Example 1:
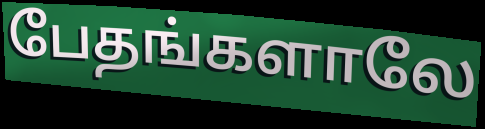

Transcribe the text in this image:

பேதங்களாலே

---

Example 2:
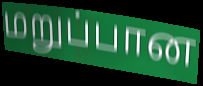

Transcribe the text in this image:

மறுப்பான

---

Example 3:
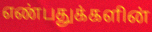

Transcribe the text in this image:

எண்பதுக்களின்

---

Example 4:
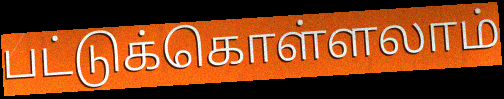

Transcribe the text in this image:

பட்டுக்கொள்ளலாம்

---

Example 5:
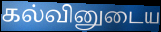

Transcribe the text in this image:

கல்வினுடைய